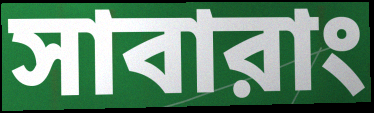
সাবারাং